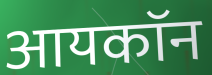
आयकॉन